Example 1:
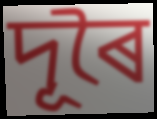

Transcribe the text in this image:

দূৰৈ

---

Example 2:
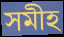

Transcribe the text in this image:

সমীহ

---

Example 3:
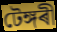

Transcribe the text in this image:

টেঙ্গৰী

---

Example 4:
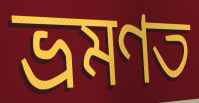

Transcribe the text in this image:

ভ্ৰমণত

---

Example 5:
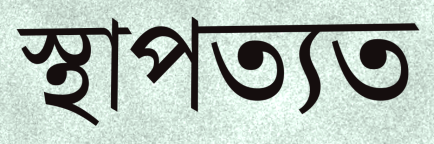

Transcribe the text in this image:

স্থাপত্যত